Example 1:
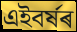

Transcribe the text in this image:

এইবৰ্ষৰ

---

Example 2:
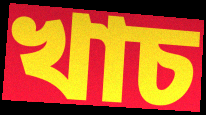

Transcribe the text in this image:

খাচ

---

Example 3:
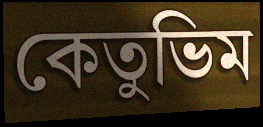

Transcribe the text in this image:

কেতুভিম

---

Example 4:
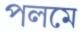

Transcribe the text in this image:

পলমে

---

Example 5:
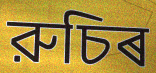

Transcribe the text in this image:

ৰুচিৰ